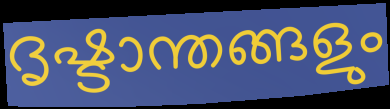
ദൃഷ്ടാന്തങ്ങളും